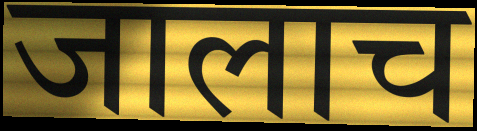
जालाच